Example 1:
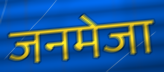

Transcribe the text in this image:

जनमेजा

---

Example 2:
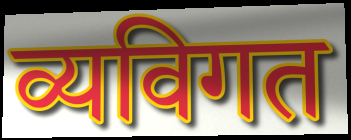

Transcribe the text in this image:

व्यविगत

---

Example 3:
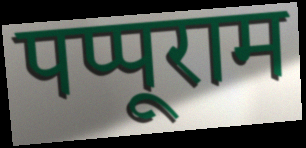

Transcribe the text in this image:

पप्पूराम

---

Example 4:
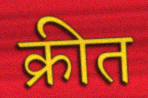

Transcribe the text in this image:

क्रीत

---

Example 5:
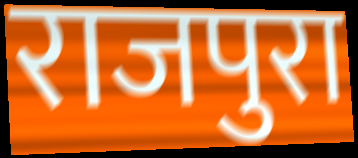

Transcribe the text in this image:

राजपुरा